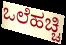
ಒಲೆಹಚ್ಚಿ